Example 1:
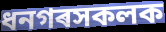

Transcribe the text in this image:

ধনগৰসকলক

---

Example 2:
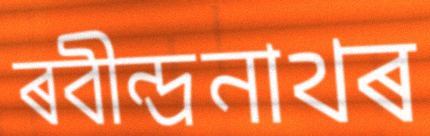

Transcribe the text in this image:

ৰবীন্দ্ৰনাথৰ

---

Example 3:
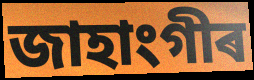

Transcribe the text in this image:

জাহাংগীৰ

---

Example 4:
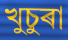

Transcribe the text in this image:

খুচুৰা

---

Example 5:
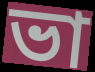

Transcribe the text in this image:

ভা